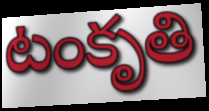
టంకృతి